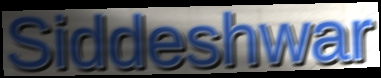
Siddeshwar